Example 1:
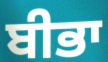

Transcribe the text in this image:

ਬੀਭਾ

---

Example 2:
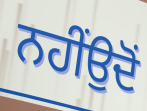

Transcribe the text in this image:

ਨਹੀਂਉਦੋਂ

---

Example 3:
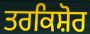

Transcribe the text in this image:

ਤਰਕਿਸ਼ੋਰ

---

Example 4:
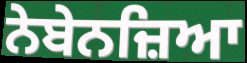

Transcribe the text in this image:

ਨੇਬੇਨਜ਼ਿਆ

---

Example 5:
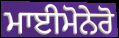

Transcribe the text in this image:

ਮਾਈਮੋਨੇਰੋ